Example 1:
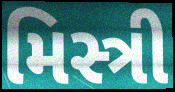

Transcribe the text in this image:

મિસ્ત્રી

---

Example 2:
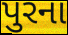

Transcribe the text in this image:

પુરના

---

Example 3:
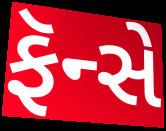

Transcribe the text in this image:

ફૅન્સે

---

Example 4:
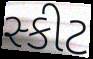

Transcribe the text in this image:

સ્કીટ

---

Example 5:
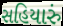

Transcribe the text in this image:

સહિયારું